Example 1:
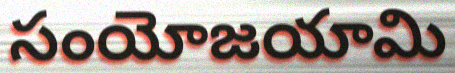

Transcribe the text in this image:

సంయోజయామి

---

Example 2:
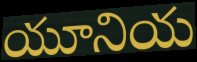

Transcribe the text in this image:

యూనియ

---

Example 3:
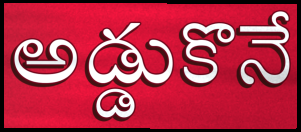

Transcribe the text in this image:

అడ్డుకొనే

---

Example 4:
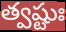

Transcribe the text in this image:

త్వష్టుః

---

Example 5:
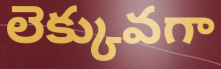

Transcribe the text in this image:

లెక్కువగా